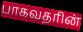
பாகவதரின்